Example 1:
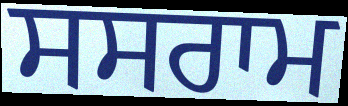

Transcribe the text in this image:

ਸਸਰਾਮ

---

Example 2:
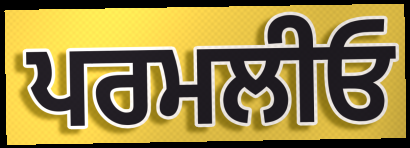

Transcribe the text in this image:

ਪਰਮਲੀਓ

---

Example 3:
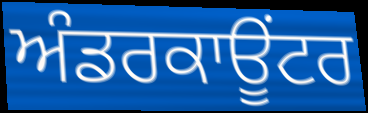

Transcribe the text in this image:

ਅੰਡਰਕਾਊਂਟਰ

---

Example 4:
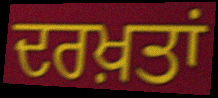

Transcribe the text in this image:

ਦਰਖ਼ਤਾਂ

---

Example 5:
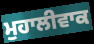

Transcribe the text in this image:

ਮੁਹਾਲੀਵਾਕ